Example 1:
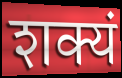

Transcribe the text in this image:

शक्यं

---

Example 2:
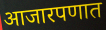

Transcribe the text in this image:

आजारपणात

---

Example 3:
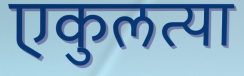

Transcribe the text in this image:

एकुलत्या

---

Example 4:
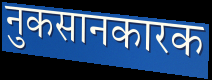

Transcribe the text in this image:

नुकसानकारक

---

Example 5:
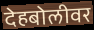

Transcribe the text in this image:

देहबोलीवर